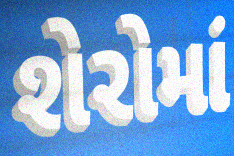
શેરોમાં